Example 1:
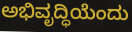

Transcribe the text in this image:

ಅಭಿವೃದ್ಧಿಯೆಂದು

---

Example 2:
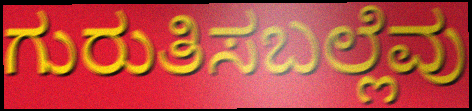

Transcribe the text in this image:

ಗುರುತಿಸಬಲ್ಲೆವು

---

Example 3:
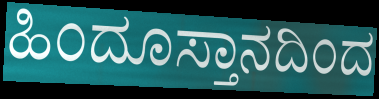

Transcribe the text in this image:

ಹಿಂದೂಸ್ತಾನದಿಂದ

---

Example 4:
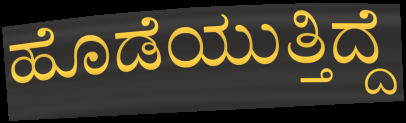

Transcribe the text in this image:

ಹೊಡೆಯುತ್ತಿದ್ದೆ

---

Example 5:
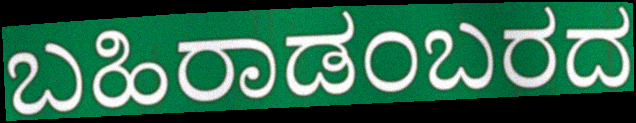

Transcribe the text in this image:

ಬಹಿರಾಡಂಬರದ